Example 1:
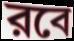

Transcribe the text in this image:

রবে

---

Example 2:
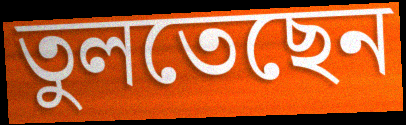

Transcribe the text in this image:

তুলতেছেন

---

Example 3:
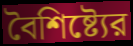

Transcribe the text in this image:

বৈশিষ্ট্যের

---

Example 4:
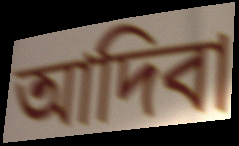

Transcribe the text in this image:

আদিবা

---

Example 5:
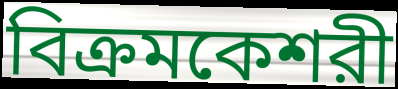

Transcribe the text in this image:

বিক্রমকেশরী